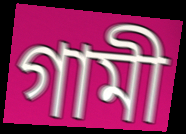
গামী